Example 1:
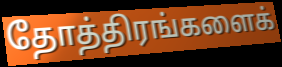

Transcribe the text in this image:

தோத்திரங்களைக்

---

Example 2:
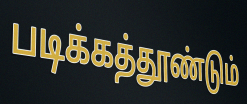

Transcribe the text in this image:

படிக்கத்தூண்டும்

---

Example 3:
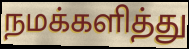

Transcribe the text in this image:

நமக்களித்து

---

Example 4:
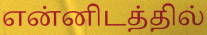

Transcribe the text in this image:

என்னிடத்தில்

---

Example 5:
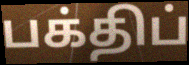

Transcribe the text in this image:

பக்திப்